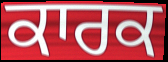
ਕਾਰਕ